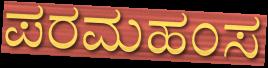
ಪರಮಹಂಸ